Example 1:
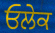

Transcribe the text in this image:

ਓਲੇਕ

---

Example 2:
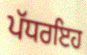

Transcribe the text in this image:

ਪੱਧਰਇਹ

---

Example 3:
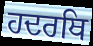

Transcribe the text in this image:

ਹਦਰਥਿ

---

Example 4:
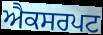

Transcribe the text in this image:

ਐਕਸਰਪਟ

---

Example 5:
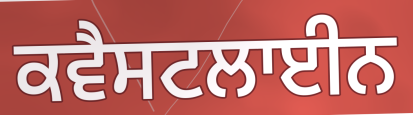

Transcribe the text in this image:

ਕਵੈਸਟਲਾਈਨ